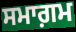
ਸਮਾਗ਼ਮ